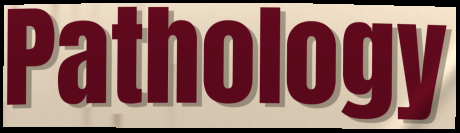
Pathology